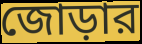
জোড়ার